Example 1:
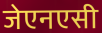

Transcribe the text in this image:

जेएनएसी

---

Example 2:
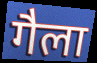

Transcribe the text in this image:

गैला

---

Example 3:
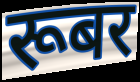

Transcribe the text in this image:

रूबर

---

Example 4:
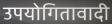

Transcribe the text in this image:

उपयोगितावादी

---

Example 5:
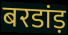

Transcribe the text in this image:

बरडांड़